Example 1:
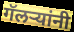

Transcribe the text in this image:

गॅलऱ्यांनी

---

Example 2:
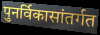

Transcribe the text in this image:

पुनर्विकासांतर्गत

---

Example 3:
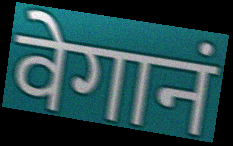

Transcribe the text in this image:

वेगानं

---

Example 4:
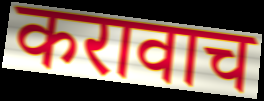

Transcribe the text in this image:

करावाच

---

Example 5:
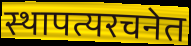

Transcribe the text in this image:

स्थापत्यरचनेत